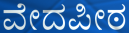
ವೇದಪೀಠ